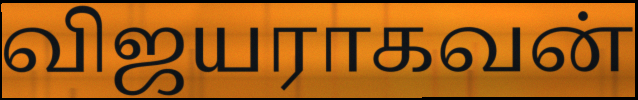
விஜயராகவன்